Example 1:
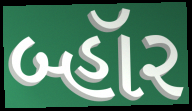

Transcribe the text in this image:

બ્હૉર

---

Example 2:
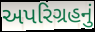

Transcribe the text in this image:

અપરિગ્રહનું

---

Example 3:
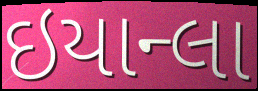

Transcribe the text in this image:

ઇયાન્લા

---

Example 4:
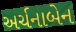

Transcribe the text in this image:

અર્ચનાબેન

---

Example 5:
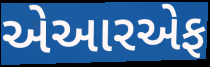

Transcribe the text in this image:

એઆરએફ